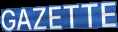
GAZETTE